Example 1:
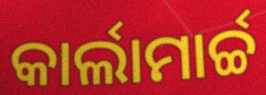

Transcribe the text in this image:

କାର୍ଲାମାର୍ଚ୍ଚ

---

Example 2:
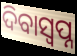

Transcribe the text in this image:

ଦିବାସ୍ଵପ୍ନ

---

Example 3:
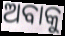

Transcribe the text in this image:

ଅବାକୁ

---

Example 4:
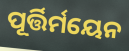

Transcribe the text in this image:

ପୂର୍ତ୍ତିର୍ମୟେନ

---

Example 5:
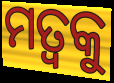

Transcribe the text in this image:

ମତ୍ୱକୁ